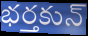
భర్తకున్